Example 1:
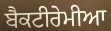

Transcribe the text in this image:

ਬੈਕਟੀਰੇਮੀਆ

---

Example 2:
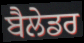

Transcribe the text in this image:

ਬੈਲੇਡਰ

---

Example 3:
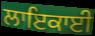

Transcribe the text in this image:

ਲਾਇਕਾਈ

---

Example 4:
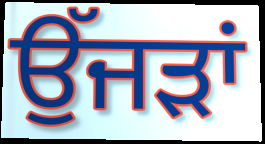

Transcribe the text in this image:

ਉੱਜੜਾਂ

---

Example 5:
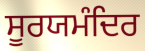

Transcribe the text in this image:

ਸੂਰਯਮੰਦਿਰ